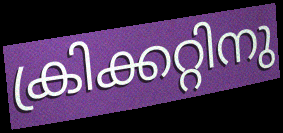
ക്രിക്കറ്റിനു